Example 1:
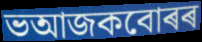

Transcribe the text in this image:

ভআজকবোৰৰ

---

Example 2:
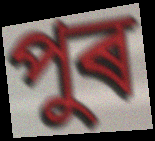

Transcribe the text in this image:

পুৰ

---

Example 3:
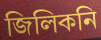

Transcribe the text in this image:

জিলিকনি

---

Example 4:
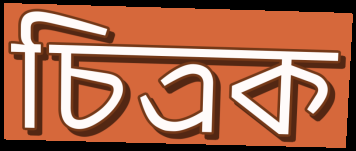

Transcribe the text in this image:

চিত্ৰক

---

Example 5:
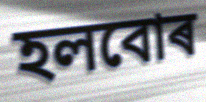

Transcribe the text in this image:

হলবোৰ